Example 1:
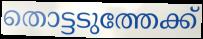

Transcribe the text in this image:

തൊട്ടടുത്തേക്ക്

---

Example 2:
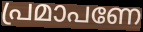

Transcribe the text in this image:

പ്രമാപണേ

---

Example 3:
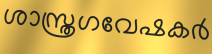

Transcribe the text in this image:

ശാസ്ത്രഗവേഷകർ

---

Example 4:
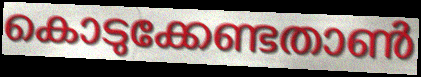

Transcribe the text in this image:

കൊടുക്കേണ്ടതാൺ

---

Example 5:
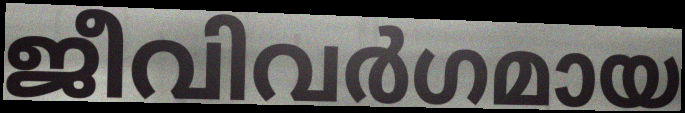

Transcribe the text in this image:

ജീവിവർഗമായ